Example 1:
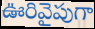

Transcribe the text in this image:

ఊరివైపుగా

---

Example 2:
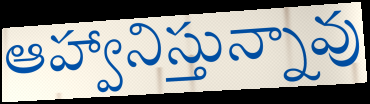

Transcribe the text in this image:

ఆహ్వానిస్తున్నావు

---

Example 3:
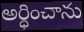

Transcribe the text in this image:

అర్ధించాను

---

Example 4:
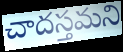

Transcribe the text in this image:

చాదస్తమని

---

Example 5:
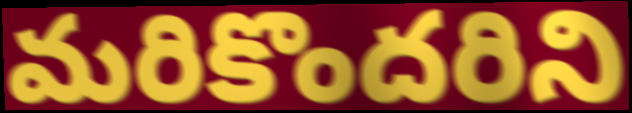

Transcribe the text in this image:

మరికొందరిని